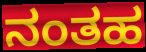
ನಂತಹ